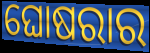
ଘୋଷରାର